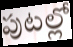
పుటల్లో